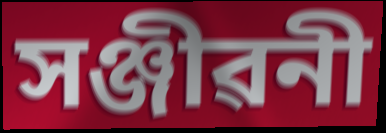
সঞ্জীৱনী